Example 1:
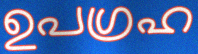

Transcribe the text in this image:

ഉപഗ്രഹ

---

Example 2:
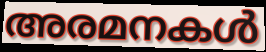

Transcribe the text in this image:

അരമനകൾ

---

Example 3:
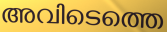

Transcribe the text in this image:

അവിടെത്തെ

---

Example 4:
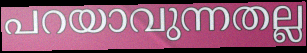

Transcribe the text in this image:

പറയാവുന്നതല്ല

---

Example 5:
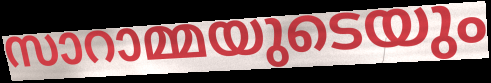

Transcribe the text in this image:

സാറാമ്മയുടെയും